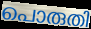
പൊരുതി